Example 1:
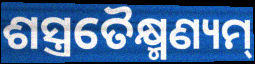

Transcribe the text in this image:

ଶସ୍ତ୍ରତୈକ୍ଷ୍ମଣ୍ୟମ୍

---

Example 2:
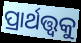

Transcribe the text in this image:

ପ୍ରାର୍ଥତ୍ତ୍ୱକୁ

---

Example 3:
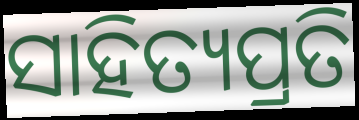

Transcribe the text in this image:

ସାହିତ୍ୟପ୍ରତି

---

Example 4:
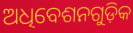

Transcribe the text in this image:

ଅଧିବେଶନଗୁଡ଼ିକ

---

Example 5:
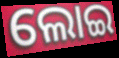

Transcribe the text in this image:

ଲୋଇ